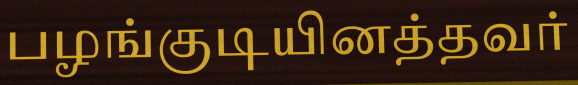
பழங்குடியினத்தவர்